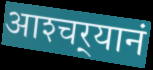
आश्चर्यानं